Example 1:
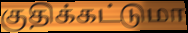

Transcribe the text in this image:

குதிக்கட்டுமா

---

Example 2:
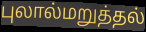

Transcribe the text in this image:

புலால்மறுத்தல்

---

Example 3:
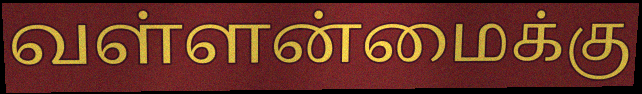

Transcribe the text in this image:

வள்ளன்மைக்கு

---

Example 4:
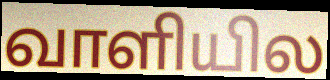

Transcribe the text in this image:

வாளியில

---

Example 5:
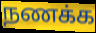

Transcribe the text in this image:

நணக்க